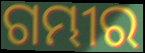
ଗମ୍ଭୀର